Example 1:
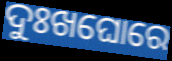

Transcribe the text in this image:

ଦୁଃଖଘୋରେ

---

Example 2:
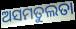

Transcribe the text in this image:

ଅସମତୁଲତା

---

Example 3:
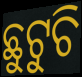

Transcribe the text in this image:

ଛୁଟୁଚି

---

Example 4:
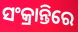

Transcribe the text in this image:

ସଂକ୍ରାନ୍ତିରେ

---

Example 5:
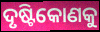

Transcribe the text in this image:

ଦୃଷ୍ଟିକୋଣକୁ